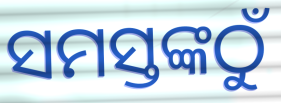
ସମସ୍ତଙ୍କଠୁଁ